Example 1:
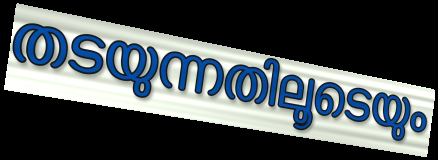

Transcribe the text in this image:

തടയുന്നതിലൂടെയും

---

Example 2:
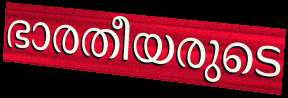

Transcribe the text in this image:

ഭാരതീയരുടെ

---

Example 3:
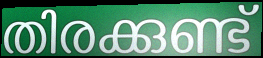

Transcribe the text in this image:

തിരക്കുണ്ട്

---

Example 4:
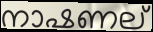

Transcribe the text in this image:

നാഷണല്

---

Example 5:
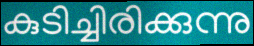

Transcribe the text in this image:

കുടിച്ചിരിക്കുന്നു